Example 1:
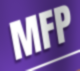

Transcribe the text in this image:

MFP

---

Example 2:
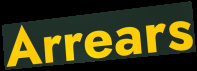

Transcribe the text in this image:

Arrears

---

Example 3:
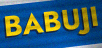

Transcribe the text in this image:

BABUJI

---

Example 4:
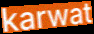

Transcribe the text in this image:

karwat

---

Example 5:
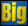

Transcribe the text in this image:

Big